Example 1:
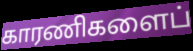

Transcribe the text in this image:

காரணிகளைப்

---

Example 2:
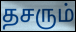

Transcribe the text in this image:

தசரும்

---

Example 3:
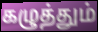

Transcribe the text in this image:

கழுத்தும்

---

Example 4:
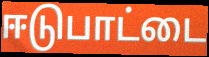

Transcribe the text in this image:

ஈடுபாட்டை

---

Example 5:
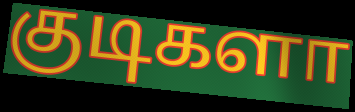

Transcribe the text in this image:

குடிகளா